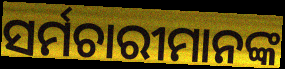
ସର୍ମଚାରୀମାନଙ୍କ